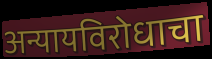
अन्यायविरोधाचा